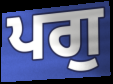
ਪਗੁ